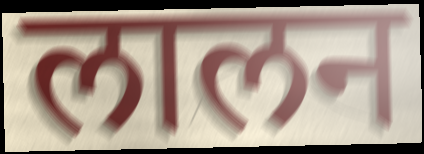
लालन